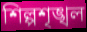
শিল্পশৃঙ্খল